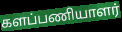
களப்பணியாளர்